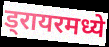
ड्रायरमध्ये